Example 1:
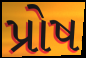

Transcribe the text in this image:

પ્રોષ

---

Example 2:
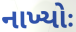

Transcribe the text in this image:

નાખ્યોઃ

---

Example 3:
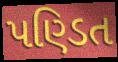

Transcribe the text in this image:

પણ્ડિત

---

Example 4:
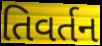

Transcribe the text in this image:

તિવર્તન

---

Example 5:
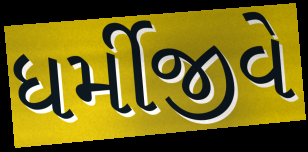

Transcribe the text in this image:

ધર્મીજીવે